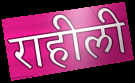
राहीली